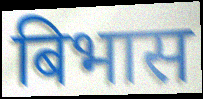
बिभास